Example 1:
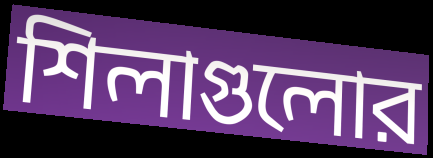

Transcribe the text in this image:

শিলাগুলোর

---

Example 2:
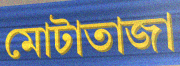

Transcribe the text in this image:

মোটাতাজা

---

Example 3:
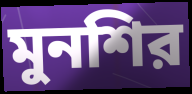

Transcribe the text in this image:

মুনশির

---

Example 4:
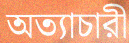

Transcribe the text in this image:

অত্যাচারী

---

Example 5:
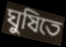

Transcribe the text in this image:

ঘুষিতে